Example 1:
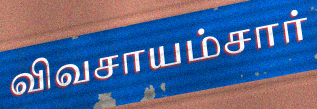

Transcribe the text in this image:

விவசாயம்சார்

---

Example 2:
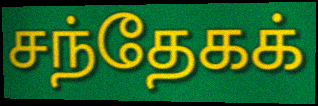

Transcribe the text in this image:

சந்தேகக்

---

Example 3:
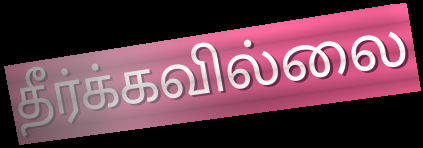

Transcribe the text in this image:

தீர்க்கவில்லை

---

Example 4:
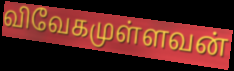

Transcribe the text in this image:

விவேகமுள்ளவன்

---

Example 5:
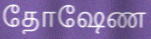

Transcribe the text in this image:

தோஷேண